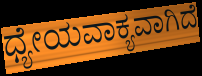
ಧ್ಯೇಯವಾಕ್ಯವಾಗಿದೆ